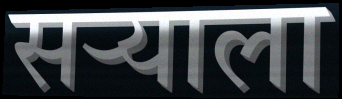
सऱ्याला